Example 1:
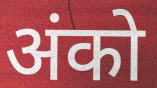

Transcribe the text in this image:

अंको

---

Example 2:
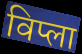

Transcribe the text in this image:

विप्ला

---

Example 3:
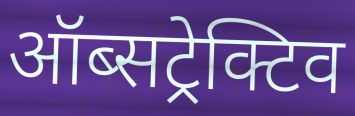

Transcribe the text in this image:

ऑब्सट्रेक्टिव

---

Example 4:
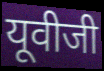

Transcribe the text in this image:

यूवीजी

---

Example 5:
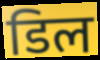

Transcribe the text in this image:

डिल